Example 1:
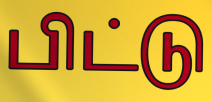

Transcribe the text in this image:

பிட்டு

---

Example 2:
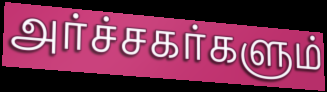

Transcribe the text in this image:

அர்ச்சகர்களும்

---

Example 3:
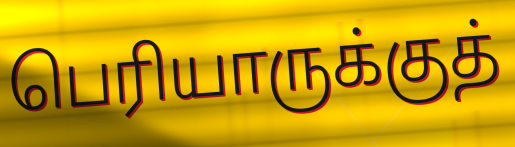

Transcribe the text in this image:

பெரியாருக்குத்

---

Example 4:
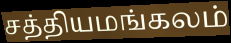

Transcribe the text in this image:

சத்தியமங்கலம்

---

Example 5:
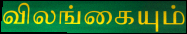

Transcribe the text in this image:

விலங்கையும்